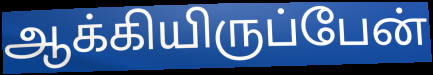
ஆக்கியிருப்பேன்